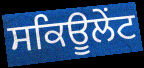
ਸਕਿਊਲੇਂਟ